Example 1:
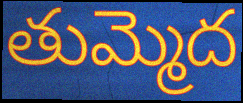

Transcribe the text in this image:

తుమ్మెద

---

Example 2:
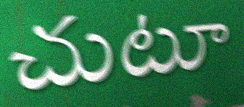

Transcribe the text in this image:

చుటూ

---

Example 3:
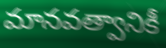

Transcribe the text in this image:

మానవత్వానికీ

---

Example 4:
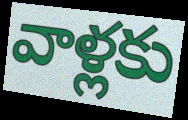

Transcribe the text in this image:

వాళ్లకు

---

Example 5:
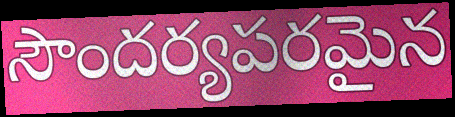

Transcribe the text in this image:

సౌందర్యపరమైన